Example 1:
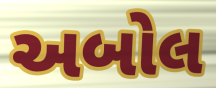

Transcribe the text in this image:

અબોલ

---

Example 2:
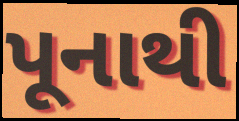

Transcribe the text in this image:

પૂનાથી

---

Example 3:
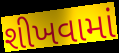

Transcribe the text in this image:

શીખવામાં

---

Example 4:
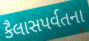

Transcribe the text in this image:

કૈલાસપર્વતના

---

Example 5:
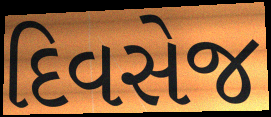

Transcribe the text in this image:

દિવસેજ